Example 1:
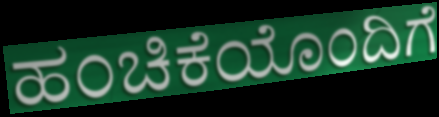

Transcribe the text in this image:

ಹಂಚಿಕೆಯೊಂದಿಗೆ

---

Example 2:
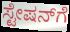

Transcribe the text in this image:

ಸ್ಟೇಷನ್‌ಗೆ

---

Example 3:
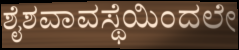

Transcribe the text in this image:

ಶೈಶವಾವಸ್ಥೆಯಿಂದಲೇ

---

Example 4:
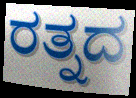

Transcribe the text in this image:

ರತ್ನದ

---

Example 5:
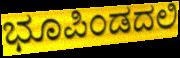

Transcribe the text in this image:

ಭೂಪಿಂಡದಲಿ